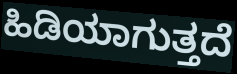
ಹಿಡಿಯಾಗುತ್ತದೆ